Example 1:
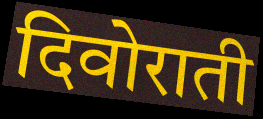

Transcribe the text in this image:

दिवोराती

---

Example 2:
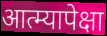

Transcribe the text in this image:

आत्म्यापेक्षा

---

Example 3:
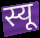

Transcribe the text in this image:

स्यू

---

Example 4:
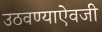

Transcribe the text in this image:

उठवण्याऐवजी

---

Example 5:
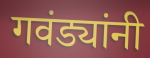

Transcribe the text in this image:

गवंड्यांनी